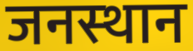
जनस्थान